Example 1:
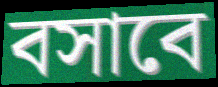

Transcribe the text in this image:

বসাবে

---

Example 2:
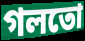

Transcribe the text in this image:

গলতো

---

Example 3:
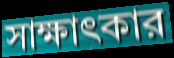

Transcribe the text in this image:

সাক্ষাৎকার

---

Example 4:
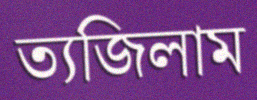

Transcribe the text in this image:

ত্যজিলাম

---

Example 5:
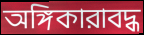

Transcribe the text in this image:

অঙ্গিকারাবদ্ধ